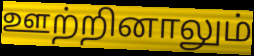
ஊற்றினாலும்